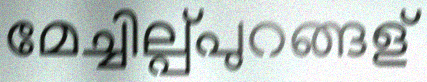
മേച്ചില്പ്പുറങ്ങള്